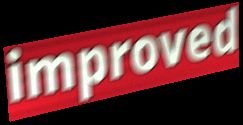
improved